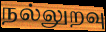
நல்லுறவு